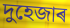
দুহেজাৰ